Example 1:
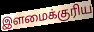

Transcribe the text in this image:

இளமைக்குரிய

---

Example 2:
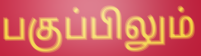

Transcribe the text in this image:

பகுப்பிலும்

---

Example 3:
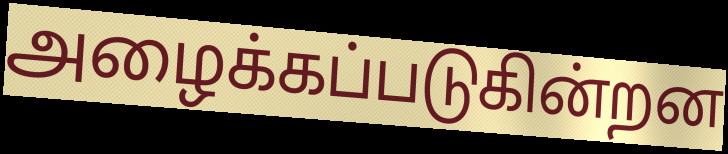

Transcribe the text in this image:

அழைக்கப்படுகின்றன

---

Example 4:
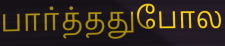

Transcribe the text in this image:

பார்த்ததுபோல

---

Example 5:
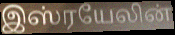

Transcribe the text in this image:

இஸ்ரயேலின்